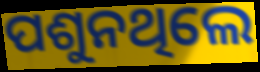
ପଶୁନଥିଲେ